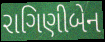
રાગિણીબેન